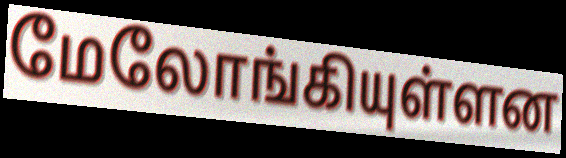
மேலோங்கியுள்ளன